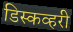
डिस्कव्हरी